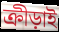
ক্রীড়াই